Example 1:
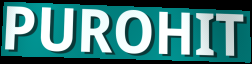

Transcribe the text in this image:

PUROHIT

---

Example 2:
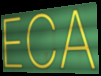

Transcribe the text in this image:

ECA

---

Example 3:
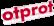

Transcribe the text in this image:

otprot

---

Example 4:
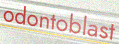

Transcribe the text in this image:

odontoblast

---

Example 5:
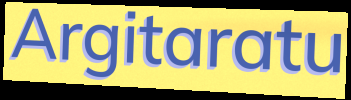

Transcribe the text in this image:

Argitaratu